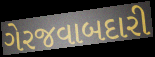
ગેરજવાબદારી